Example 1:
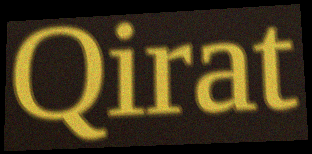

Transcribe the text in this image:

Qirat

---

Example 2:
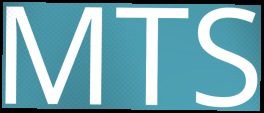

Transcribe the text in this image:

MTS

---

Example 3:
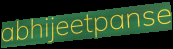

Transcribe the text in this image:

abhijeetpanse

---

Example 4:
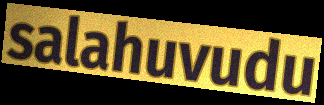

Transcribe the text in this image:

salahuvudu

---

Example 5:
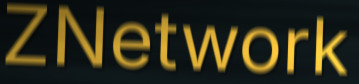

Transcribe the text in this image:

ZNetwork